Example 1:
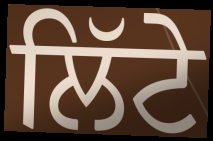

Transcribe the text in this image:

ਲਿੱਟੇ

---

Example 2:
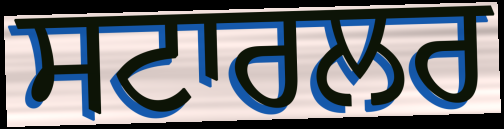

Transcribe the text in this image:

ਸਟਾਰਲਰ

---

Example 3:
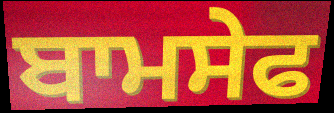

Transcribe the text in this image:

ਬਾਮਸੇਫ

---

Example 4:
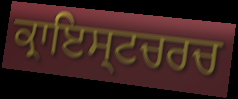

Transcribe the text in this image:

ਕ੍ਰਾਇਸ੍ਟਚਰਚ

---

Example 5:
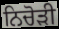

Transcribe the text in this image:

ਨਿਚੋੜੀ